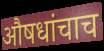
औषधांचाच